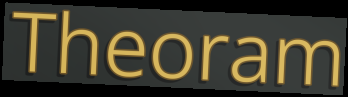
Theoram